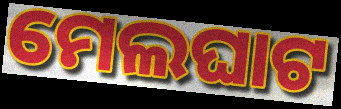
ମେଲଘାଟ